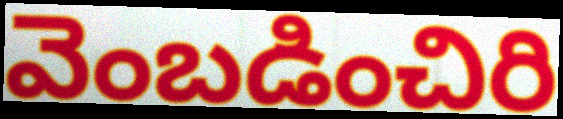
వెంబడించిరి